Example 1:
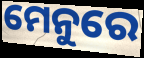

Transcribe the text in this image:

ମେନୁରେ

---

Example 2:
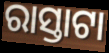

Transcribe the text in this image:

ରାସ୍ତାଟା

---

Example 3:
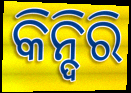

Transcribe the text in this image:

କିନ୍ଦିରି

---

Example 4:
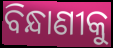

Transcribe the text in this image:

ବିନ୍ଧାଣୀକୁ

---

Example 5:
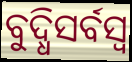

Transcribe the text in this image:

ବୁଦ୍ଧିସର୍ବସ୍ୱ